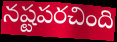
నష్టపరచింది